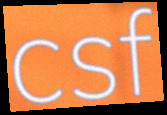
csf